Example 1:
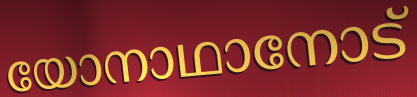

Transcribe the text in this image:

യോനാഥാനോട്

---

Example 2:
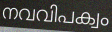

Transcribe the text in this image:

നവവിപക്വം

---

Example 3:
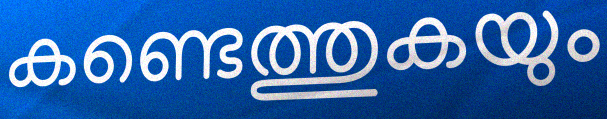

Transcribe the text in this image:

കണ്ടെത്തുകയും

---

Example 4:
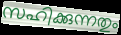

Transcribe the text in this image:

സഹിക്കുന്നതും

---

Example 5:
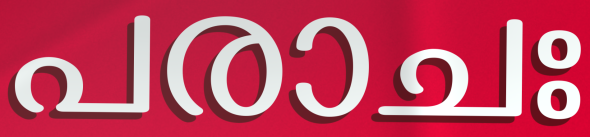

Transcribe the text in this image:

പരാചഃ